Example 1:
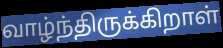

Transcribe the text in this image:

வாழ்ந்திருக்கிறாள்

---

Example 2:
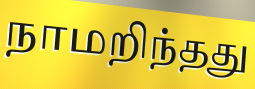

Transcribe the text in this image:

நாமறிந்தது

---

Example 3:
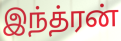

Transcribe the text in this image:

இந்த்ரன்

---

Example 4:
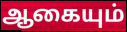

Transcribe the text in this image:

ஆகையும்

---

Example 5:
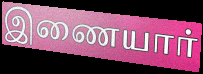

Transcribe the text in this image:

இணையார்